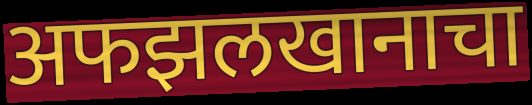
अफझलखानाचा